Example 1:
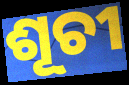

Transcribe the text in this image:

ଶୂଚୀ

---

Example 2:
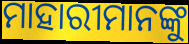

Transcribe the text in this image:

ମାହାରୀମାନଙ୍କୁ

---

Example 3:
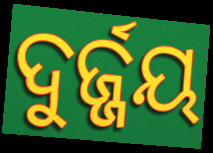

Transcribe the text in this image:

ଦୁର୍ଜ୍ଜୟ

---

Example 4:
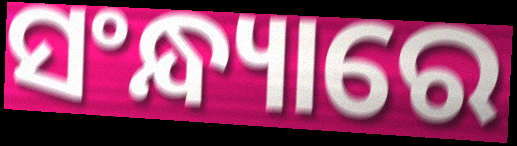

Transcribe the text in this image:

ସଂନ୍ଧ୍ୟାରେ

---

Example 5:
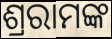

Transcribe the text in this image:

ଶ୍ରରାମଙ୍କ